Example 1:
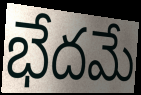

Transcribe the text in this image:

భేదమే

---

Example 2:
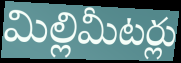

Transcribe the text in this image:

మిల్లిమీటర్లు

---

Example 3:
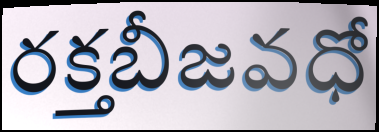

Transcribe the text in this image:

రక్తబీజవధో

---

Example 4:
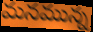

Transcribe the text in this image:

మనమున్న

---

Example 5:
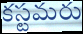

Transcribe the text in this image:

కస్టమరు